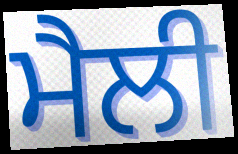
ਮੈਲੀ